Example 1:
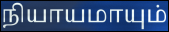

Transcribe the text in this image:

நியாயமாயும்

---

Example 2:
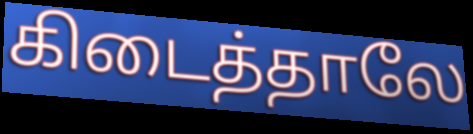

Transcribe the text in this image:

கிடைத்தாலே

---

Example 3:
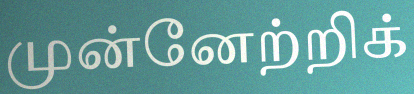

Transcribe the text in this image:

முன்னேற்றிக்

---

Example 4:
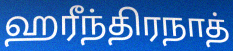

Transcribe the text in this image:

ஹரீந்திரநாத்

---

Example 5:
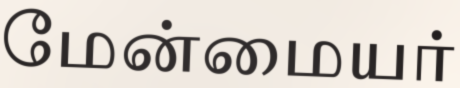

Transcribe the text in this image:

மேன்மையர்